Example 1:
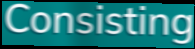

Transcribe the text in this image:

Consisting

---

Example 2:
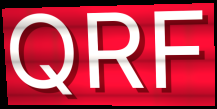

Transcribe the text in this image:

QRF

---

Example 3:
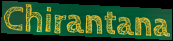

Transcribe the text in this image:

Chirantana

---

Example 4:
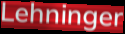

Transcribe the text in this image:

Lehninger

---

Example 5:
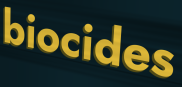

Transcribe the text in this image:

biocides